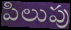
పిలుపు